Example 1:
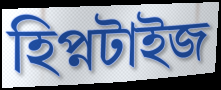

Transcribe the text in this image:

হিপ্নটাইজ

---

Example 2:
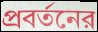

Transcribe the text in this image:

প্রবর্তনের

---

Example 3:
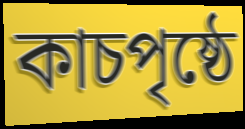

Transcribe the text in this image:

কাচপৃষ্ঠে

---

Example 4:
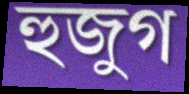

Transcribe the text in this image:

হুজুগ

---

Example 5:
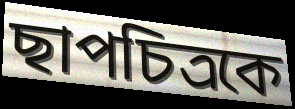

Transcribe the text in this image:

ছাপচিত্রকে